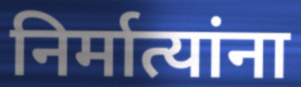
निर्मात्यांना